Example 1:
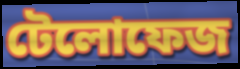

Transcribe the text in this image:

টেলোফেজ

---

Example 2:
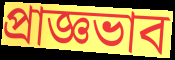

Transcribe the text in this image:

প্রাজ্ঞভাব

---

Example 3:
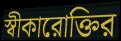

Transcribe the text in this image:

স্বীকারোক্তির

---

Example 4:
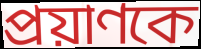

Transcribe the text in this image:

প্রয়াণকে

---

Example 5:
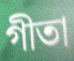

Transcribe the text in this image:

গীতা